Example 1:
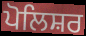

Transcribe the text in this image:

ਪੋਲਿਸ਼ਰ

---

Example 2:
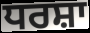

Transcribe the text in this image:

ਧਰਸ਼ਾ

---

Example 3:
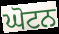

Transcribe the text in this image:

ਘੋਟਨ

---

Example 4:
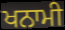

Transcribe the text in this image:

ਖਨਾਮੀ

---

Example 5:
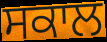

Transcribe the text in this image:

ਸਕਾਲ